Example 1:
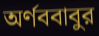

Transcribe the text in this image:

অর্ণববাবুর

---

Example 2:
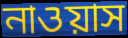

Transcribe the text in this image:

নাওয়াস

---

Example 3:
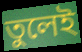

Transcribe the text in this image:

তুলেই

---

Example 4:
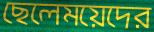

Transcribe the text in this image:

ছেলেময়েদের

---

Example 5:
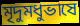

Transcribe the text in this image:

মৃদুমধুভাষে